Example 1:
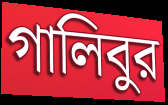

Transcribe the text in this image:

গালিবুর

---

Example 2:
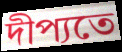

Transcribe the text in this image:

দীপ্যতে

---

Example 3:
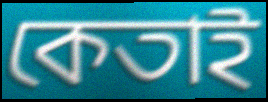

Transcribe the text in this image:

কেতাই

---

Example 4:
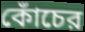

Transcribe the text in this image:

কোঁচের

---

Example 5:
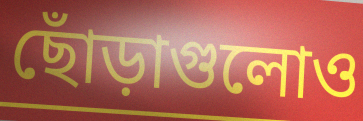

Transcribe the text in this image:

ছোঁড়াগুলোও